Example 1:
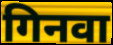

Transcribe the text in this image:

गिनवा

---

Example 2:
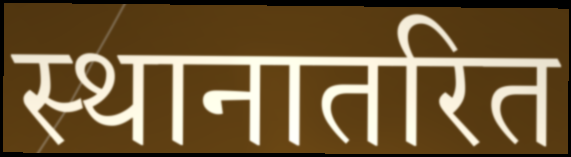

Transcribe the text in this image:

स्थानातरित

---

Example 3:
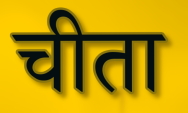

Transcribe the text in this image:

चीता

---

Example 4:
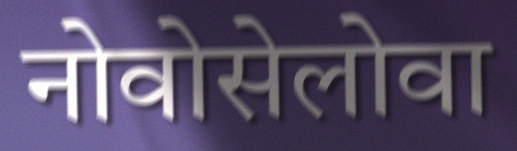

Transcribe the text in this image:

नोवोसेलोवा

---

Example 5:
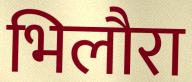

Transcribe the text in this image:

भिलौरा